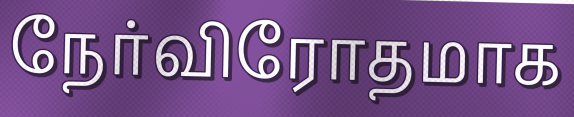
நேர்விரோதமாக